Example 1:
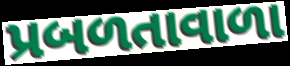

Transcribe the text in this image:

પ્રબળતાવાળા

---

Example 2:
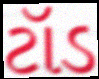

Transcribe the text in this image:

ટૉડ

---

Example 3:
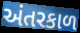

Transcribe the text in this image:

અંતરકાળ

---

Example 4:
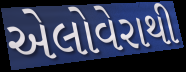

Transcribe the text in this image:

એલોવેરાથી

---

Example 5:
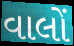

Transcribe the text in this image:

વાલોં